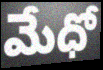
మేధో